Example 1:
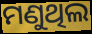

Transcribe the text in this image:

ମଣୁଥିଲ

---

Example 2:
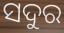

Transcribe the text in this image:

ସଦୁର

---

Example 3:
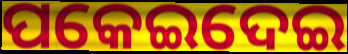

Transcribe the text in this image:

ପକେଇଦେଇ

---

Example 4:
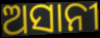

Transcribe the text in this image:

ଅସାନୀ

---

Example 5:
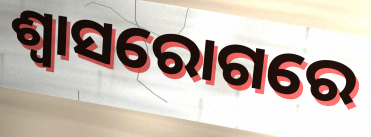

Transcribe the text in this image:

ଶ୍ଵାସରୋଗରେ